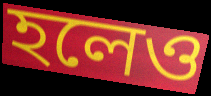
হলেও